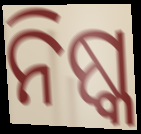
ନିଷ୍କ